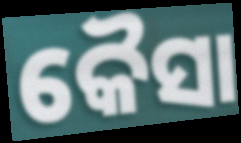
କୈସା